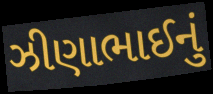
ઝીણાભાઈનું